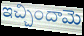
ఇచ్చిందామె